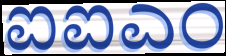
ಐಐಎಂ